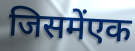
जिसमेंएक